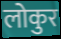
लोकुर